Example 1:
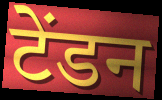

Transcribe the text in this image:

टेंडन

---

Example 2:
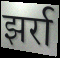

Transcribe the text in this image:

झर्रा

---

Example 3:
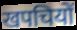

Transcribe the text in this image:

खपचियों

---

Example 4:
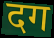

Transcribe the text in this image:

दग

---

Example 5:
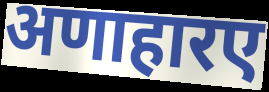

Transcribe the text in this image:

अणाहारए